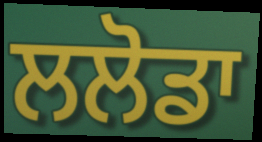
ਲਲੋਡਾ